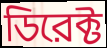
ডিরেক্ট